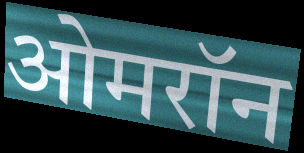
ओमरॉन